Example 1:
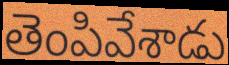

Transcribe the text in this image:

తెంపివేశాడు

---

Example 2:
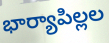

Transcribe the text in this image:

భార్యాపిల్లల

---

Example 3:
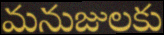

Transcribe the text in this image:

మనుజులకు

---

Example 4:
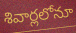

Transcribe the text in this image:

శివార్లలోనూ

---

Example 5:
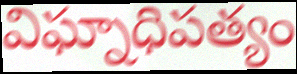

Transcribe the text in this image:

విఘ్నాధిపత్యం